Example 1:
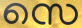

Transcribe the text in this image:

സെ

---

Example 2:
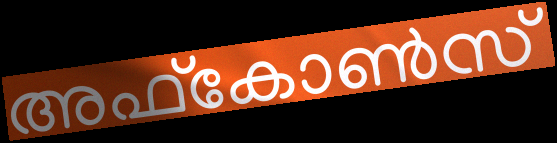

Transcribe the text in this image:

അഫ്കോൺസ്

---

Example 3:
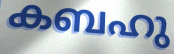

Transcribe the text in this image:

കബഹു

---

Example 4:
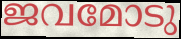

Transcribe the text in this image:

ജവമോടു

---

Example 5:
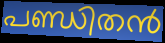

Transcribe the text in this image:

പണ്ഡിതൻ